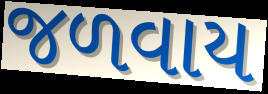
જળવાય